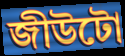
জীউটো